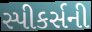
સ્પીકર્સની